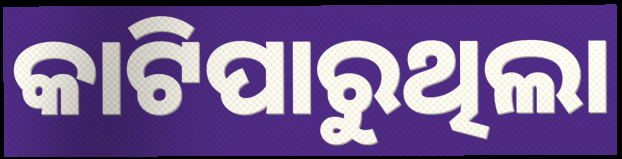
କାଟିପାରୁଥିଲା